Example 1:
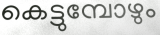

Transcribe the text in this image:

കെട്ടുമ്പോഴും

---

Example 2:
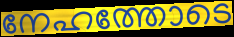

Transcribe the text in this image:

നേഹത്തോടെ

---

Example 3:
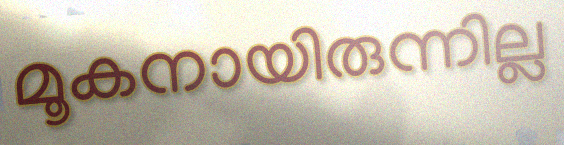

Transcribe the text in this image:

മൂകനായിരുന്നില്ല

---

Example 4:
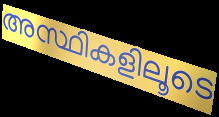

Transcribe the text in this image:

അസ്ഥികളിലൂടെ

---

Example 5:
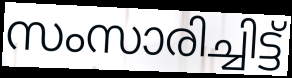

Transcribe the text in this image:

സംസാരിച്ചിട്ട്